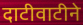
दाटीवाटीने